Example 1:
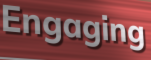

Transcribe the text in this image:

Engaging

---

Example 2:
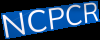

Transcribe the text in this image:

NCPCR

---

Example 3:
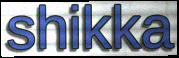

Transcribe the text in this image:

shikka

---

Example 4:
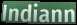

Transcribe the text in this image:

Indiann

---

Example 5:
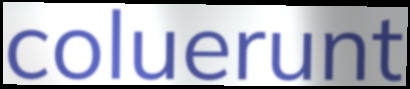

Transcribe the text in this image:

coluerunt